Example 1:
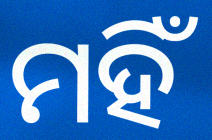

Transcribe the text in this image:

ମହିଁ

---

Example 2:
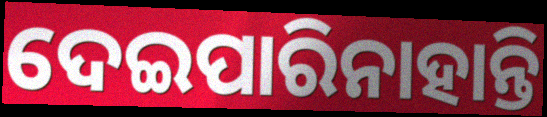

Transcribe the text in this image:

ଦେଇପାରିନାହାନ୍ତି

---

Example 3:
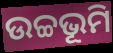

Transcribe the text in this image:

ଉଚ୍ଚଭୂମି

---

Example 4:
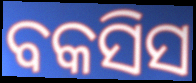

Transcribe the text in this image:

ବକସିସ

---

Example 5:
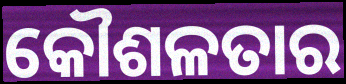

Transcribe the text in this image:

କୌଶଳତାର